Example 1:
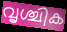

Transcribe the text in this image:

വൃശ്ചിക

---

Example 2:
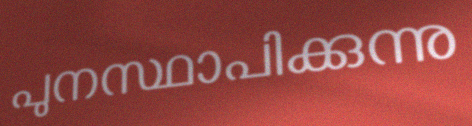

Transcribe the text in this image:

പുനസ്ഥാപിക്കുന്നു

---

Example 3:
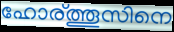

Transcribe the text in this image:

ഹോര്ത്തൂസിനെ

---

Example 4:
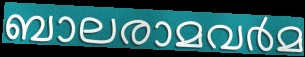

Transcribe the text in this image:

ബാലരാമവർമ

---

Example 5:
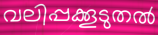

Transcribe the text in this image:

വലിപ്പക്കൂടുതൽ